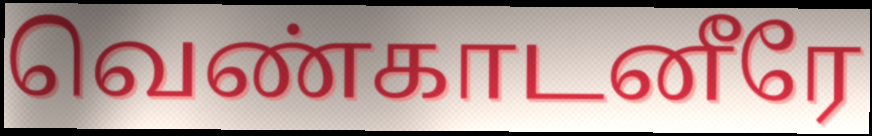
வெண்காடனீரே